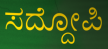
ಸದ್ದೋಪಿ